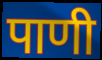
पाणी